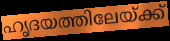
ഹൃദയത്തിലേയ്ക്ക്